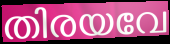
തിരയവേ